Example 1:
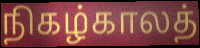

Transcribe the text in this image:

நிகழ்காலத்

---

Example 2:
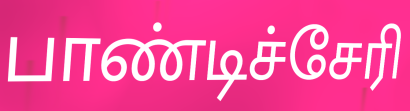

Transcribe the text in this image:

பாண்டிச்சேரி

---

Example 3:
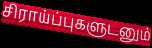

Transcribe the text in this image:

சிராய்ப்புகளுடனும்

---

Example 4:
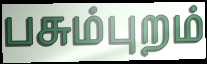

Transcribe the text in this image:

பசும்புறம்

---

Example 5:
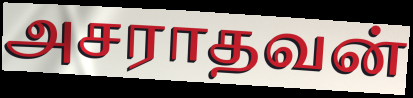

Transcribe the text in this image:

அசராதவன்